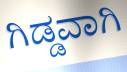
ಗಿಡ್ಡವಾಗಿ